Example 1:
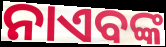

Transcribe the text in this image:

ନାଏବଙ୍କ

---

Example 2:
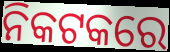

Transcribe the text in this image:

ନିକଟକରେ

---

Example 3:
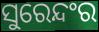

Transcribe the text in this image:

ସୁରେନ୍ଦଂର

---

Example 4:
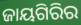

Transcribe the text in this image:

ଜାୟଗିରିର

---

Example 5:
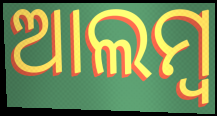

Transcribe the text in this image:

ଆଲମ୍ବ